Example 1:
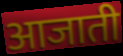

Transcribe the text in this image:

आजाती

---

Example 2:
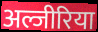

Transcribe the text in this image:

अल्जीरिया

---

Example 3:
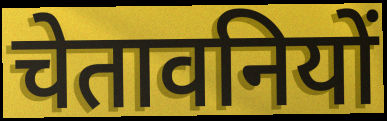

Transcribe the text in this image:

चेतावनियों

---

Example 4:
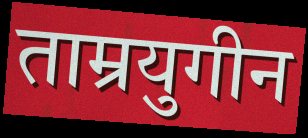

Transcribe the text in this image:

ताम्रयुगीन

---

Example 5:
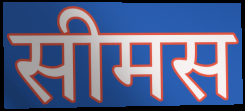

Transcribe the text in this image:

सीमस